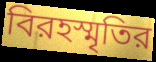
বিরহস্মৃতির